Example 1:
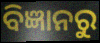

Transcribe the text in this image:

ବିଜ୍ଞାନରୁ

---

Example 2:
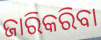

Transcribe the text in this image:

ଜାରିକରିବା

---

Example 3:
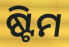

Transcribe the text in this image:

ଷ୍ଟିମ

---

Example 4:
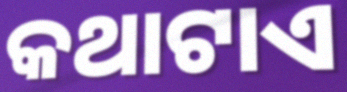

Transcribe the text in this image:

କଥାଟାଏ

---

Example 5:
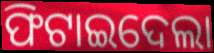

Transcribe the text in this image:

ଫିଟାଇଦେଲା